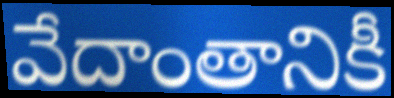
వేదాంతానికీ